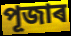
পূজাৰ